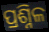
ପ୍ରଶ୍ନିଳ